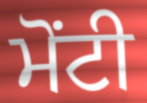
ਮੋਂਟੀ